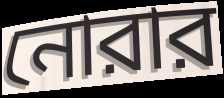
নোরার